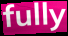
fully